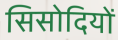
सिसोदियों